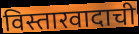
विस्तारवादाची